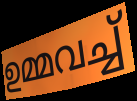
ഉമ്മവച്ച്